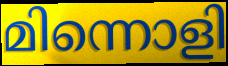
മിന്നൊളി